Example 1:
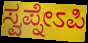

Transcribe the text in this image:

ಸ್ವಪ್ನೇಽಪಿ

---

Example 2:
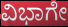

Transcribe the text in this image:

ವಿಭಾಗೇ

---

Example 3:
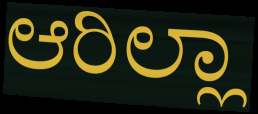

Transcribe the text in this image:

ಆರಿಲ್ಲಾ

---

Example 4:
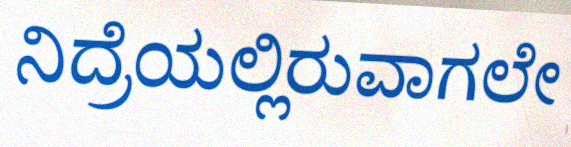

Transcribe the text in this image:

ನಿದ್ರೆಯಲ್ಲಿರುವಾಗಲೇ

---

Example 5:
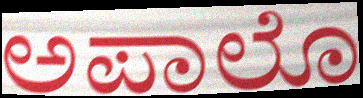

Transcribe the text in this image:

ಅಪಾಲೊ